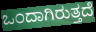
ಒಂದಾಗಿರುತ್ತದೆ